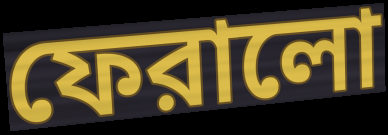
ফেরালো